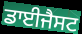
ਡਾਈਜੈਸਟ